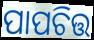
ପାପଚିତ୍ତ